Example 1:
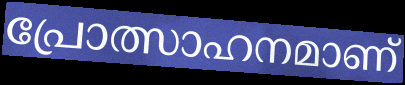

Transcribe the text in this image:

പ്രോത്സാഹനമാണ്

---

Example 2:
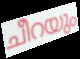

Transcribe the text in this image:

ചീറയും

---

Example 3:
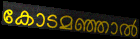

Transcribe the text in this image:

കോടമഞ്ഞാൽ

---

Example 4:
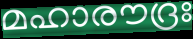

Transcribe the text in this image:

മഹാരൗദ്രഃ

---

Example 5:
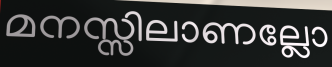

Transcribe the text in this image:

മനസ്സിലാണല്ലോ